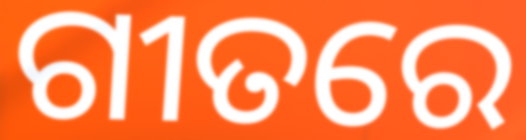
ଗୀତରେ